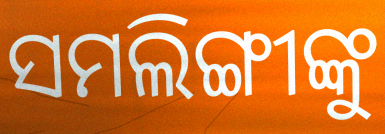
ସମଲିଙ୍ଗୀଙ୍କୁ